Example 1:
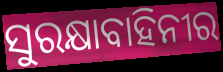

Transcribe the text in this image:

ସୁରକ୍ଷାବାହିନୀର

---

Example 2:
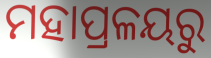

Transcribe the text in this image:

ମହାପ୍ରଳୟରୁ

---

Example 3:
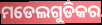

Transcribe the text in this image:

ମଡେଲଗୁଡିକର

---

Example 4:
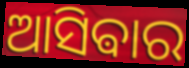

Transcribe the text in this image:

ଆସିଵାର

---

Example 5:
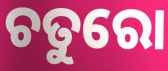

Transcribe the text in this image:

ଚତୁରୋ